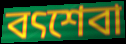
বৎশেবা